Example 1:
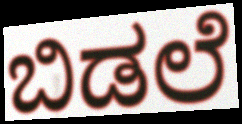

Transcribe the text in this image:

ಬಿಡಲೆ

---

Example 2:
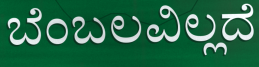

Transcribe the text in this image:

ಬೆಂಬಲವಿಲ್ಲದೆ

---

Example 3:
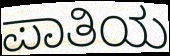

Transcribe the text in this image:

ಪಾತಿಯ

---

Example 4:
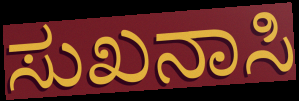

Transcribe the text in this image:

ಸುಖನಾಸಿ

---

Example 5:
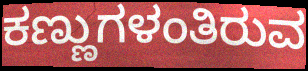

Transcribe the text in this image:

ಕಣ್ಣುಗಳಂತಿರುವ